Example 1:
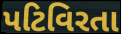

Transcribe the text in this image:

પટિવિરતા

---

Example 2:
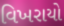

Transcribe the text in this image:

વિખરાયો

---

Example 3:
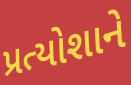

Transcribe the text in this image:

પ્રત્યોશાને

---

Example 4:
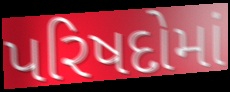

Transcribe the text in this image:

પરિષદોમાં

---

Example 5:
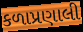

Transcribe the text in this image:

કળાપ્રણાલી